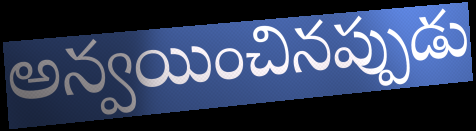
అన్వయించినప్పుడు